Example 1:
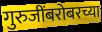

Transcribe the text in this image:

गुरुजींबरोबरच्या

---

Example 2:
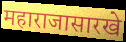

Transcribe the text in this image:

महाराजासारखे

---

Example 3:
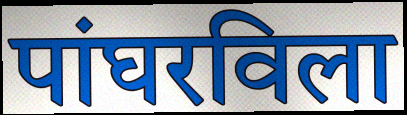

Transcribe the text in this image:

पांघरविला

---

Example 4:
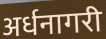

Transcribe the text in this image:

अर्धनागरी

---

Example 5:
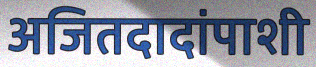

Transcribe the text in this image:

अजितदादांपाशी